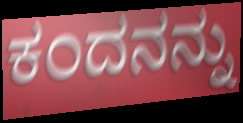
ಕಂದನನ್ನು